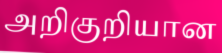
அறிகுறியான